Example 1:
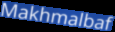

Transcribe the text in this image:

Makhmalbaf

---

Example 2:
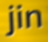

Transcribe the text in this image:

jin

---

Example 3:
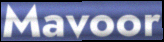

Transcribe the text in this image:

Mavoor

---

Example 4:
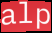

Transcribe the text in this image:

alp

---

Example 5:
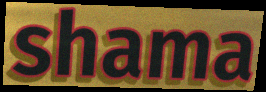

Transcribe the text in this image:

shama